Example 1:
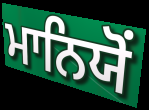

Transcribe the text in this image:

ਮਾਨਿਯੋਂ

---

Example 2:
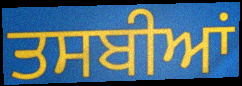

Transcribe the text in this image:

ਤਸਬੀਆਂ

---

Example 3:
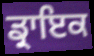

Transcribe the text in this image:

ਡ੍ਰਾਇਕ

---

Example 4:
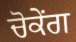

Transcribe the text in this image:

ਚੋਕੇਂਗ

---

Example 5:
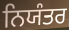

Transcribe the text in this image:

ਨਿਯੰਤਰ